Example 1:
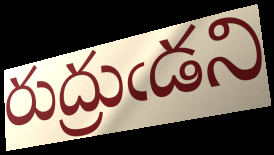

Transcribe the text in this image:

రుద్రుఁడని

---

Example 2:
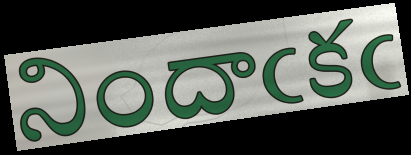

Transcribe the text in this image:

నిందాఁకఁ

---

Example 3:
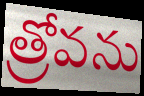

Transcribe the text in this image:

త్రోవను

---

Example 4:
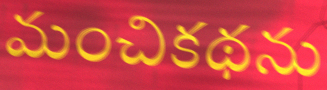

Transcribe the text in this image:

మంచికథను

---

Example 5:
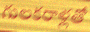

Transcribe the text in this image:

గులకరాళ్లతో